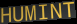
HUMINT